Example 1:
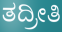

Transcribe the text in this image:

ತದ್ರೀತಿ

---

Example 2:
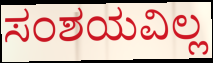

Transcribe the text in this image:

ಸಂಶಯವಿಲ್ಲ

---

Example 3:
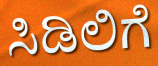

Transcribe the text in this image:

ಸಿಡಿಲಿಗೆ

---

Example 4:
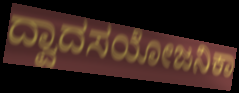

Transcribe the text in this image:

ದ್ವಾದಸಯೋಜನಿಕಾ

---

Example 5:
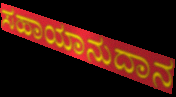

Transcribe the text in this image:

ಸಹಾಯಾನುದಾನ